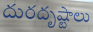
దురదృష్టాలు